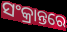
ସଂକ୍ରାନ୍ତରେ